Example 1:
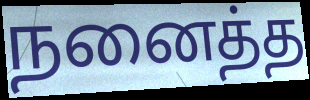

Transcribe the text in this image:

நனைத்த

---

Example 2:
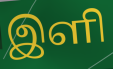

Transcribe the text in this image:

இளி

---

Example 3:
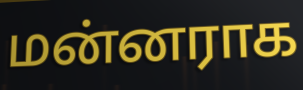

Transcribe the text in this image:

மன்னராக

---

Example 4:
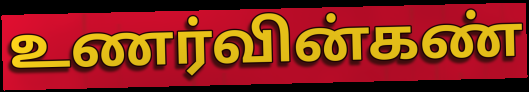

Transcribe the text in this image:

உணர்வின்கண்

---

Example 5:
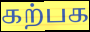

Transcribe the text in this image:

கற்பக